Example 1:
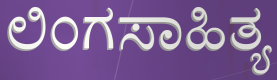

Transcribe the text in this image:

ಲಿಂಗಸಾಹಿತ್ಯ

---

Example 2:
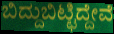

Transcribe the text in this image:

ಬಿದ್ದುಬಿಟ್ಟಿದ್ದೇವೆ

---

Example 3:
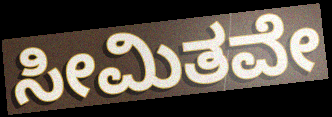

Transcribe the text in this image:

ಸೀಮಿತವೇ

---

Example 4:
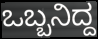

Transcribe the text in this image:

ಒಬ್ಬನಿದ್ದ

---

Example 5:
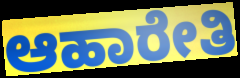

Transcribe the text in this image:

ಆಹಾರೇತಿ